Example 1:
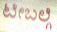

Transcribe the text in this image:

ಟೇಬಲ್ಗೆ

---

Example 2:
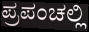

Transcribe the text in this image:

ಪ್ರಪಂಚಲ್ಲಿ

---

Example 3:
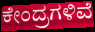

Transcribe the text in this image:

ಕೇಂದ್ರಗಳಿವೆ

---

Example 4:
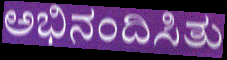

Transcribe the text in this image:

ಅಭಿನಂದಿಸಿತು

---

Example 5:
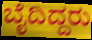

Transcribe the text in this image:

ಬೈದಿದ್ದರು